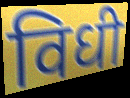
विधी